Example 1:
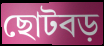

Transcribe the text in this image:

ছোটবড়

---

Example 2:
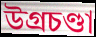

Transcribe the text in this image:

উগ্রচণ্ডা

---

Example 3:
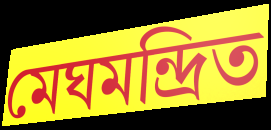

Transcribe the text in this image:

মেঘমন্দ্রিত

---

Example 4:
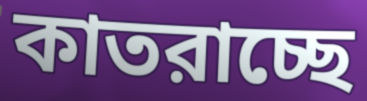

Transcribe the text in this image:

কাতরাচ্ছে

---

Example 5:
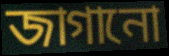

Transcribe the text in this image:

জাগানো